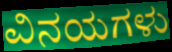
ವಿನಯಗಳು